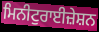
ਮਿਨੀਟੁਰਾਈਜ਼ੇਸ਼ਨ